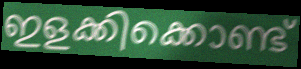
ഇളക്കിക്കൊണ്ട്